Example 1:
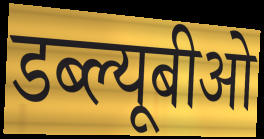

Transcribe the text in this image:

डब्ल्यूबीओ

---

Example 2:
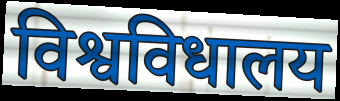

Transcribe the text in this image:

विश्वविधालय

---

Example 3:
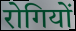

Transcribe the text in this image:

रोगियों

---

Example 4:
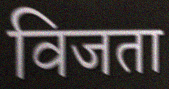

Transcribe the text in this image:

विजता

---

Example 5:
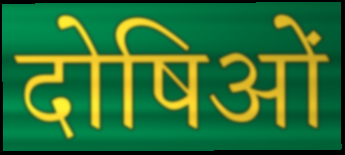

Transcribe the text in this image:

दोषिओं